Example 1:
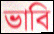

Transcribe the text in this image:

ভাবি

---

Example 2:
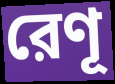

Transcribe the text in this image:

রেণূ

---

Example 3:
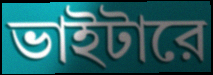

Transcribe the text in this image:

ভাইটারে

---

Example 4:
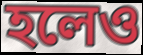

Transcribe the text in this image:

হলেও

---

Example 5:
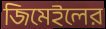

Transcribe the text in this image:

জিমেইলের